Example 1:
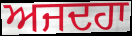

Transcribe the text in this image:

ਅਜਦਹਾ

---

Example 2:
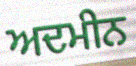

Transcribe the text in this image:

ਅਦਮੀਨ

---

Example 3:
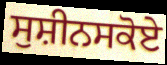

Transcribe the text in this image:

ਸੁਸ਼ੀਨਸਕੋਏ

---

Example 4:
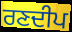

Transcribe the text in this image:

ਰਣਦੀਪ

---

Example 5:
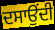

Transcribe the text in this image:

ਦਸਾਉਂਦੀ